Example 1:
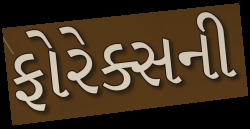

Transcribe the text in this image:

ફોરેક્સની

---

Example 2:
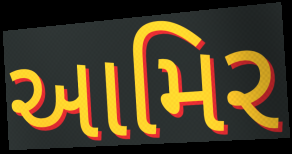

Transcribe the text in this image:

આમિર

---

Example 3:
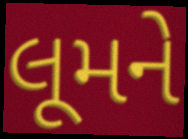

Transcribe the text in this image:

લૂમને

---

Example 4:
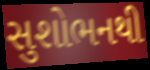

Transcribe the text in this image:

સુશોભનથી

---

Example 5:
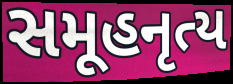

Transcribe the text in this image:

સમૂહનૃત્ય